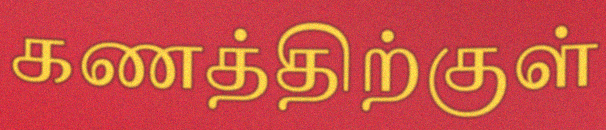
கணத்திற்குள்